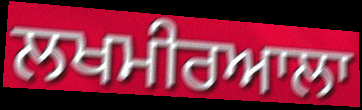
ਲਖਮੀਰਆਲਾ